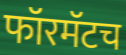
फॉरमॅटच